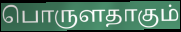
பொருளதாகும்